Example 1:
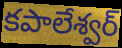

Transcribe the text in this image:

కపాలేశ్వర్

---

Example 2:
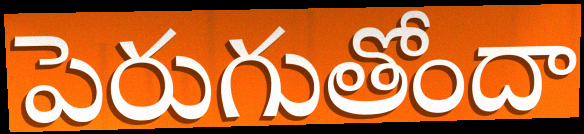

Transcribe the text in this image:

పెరుగుతోందా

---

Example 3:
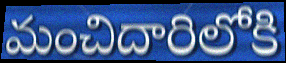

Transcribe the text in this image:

మంచిదారిలోకి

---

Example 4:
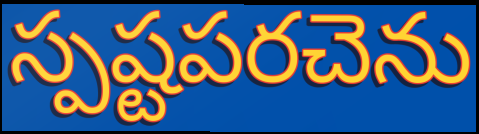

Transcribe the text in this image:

స్పష్టపరచెను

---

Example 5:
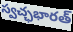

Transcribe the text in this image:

స్వచ్ఛభారత్